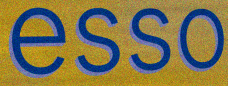
esso